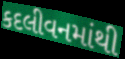
કદલીવનમાંથી